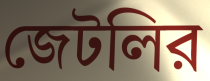
জেটলির